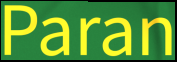
Paran